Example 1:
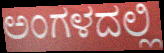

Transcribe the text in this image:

ಅಂಗಳದಲ್ಲಿ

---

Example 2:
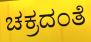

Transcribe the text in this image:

ಚಕ್ರದಂತೆ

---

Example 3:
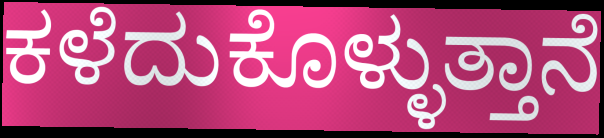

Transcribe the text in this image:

ಕಳೆದುಕೊಳ್ಳುತ್ತಾನೆ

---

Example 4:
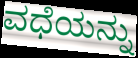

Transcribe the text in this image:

ವಧೆಯನ್ನು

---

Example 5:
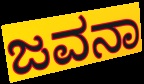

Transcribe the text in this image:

ಜವನಾ